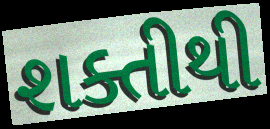
શક્તીથી